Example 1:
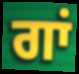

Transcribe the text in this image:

ਗਾਂ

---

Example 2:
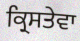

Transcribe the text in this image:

ਕ੍ਰਿਸਤੇਵਾ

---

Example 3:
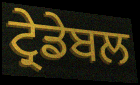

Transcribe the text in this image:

ਟ੍ਰੇਡੇਬਲ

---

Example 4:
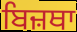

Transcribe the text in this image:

ਬਿਜ਼ਥਾ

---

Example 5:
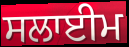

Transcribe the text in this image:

ਸਲਾਈਮ